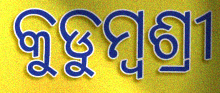
କୁଡୁମ୍ବଶ୍ରୀ